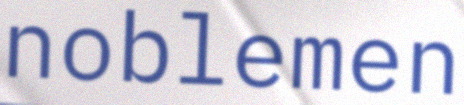
noblemen